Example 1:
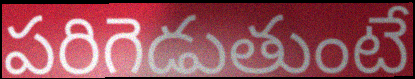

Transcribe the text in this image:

పరిగెడుతుంటే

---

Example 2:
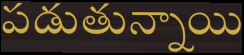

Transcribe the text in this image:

పడుతున్నాయి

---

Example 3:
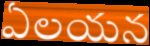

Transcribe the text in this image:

ఏలయన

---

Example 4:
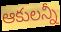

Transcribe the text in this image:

ఆకులన్నీ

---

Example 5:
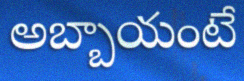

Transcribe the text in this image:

అబ్బాయంటే